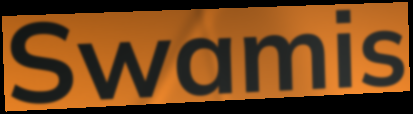
Swamis